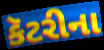
કૅટરીના